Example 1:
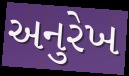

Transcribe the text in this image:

અનુરેખ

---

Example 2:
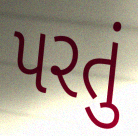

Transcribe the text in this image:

પરતું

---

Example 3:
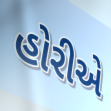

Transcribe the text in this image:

હોરીએ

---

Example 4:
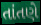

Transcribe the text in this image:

તાંતણે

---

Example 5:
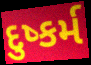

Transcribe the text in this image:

દુષ્કર્મ